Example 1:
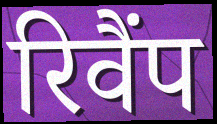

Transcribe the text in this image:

रिवैंप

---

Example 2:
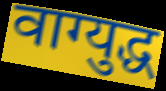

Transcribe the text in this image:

वाग्युद्ध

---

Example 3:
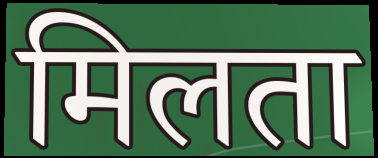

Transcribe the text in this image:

मिलता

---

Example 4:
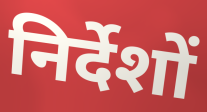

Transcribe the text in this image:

निर्देशों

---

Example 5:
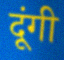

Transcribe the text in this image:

दूंगी